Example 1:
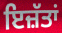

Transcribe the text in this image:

ਇਜ਼ੱਤਾਂ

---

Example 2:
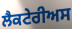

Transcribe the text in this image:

ਲੈਕਟੇਰੀਅਸ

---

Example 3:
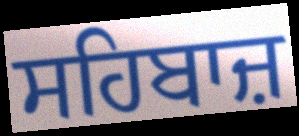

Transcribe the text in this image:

ਸਹਿਬਾਜ਼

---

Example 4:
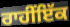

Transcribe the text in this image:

ਰਾਹੀਂਇੱਕ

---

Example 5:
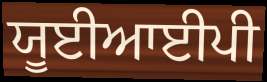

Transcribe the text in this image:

ਯੂਈਆਈਪੀ